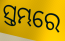
ସ୍ତମ୍ଭରେ